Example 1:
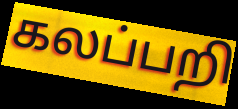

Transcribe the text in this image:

கலப்பறி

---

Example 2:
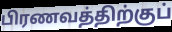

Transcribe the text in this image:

பிரணவத்திற்குப்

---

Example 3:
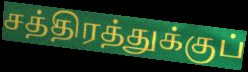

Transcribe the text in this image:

சத்திரத்துக்குப்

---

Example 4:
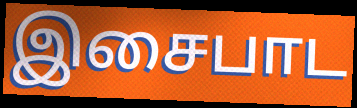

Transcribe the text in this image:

இசைபாட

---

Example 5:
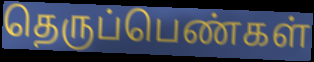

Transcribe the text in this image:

தெருப்பெண்கள்